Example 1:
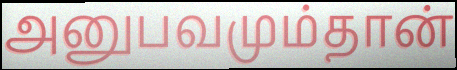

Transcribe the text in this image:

அனுபவமும்தான்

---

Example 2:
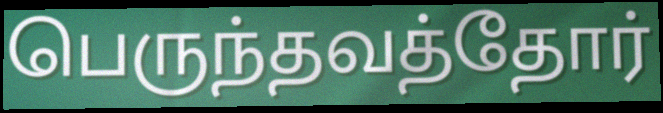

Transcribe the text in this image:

பெருந்தவத்தோர்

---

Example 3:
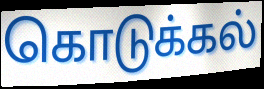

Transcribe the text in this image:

கொடுக்கல்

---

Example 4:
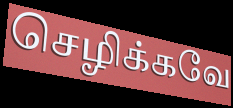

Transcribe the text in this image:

செழிக்கவே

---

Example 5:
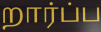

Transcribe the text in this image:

றார்ப்ப